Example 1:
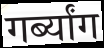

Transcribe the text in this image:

गर्ब्यांग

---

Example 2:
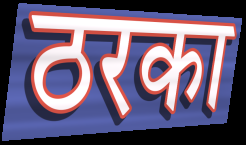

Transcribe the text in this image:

ठरका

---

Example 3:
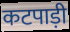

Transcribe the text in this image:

कटपाड़ी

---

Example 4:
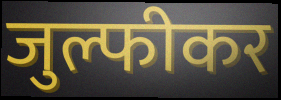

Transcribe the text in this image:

जुल्फीकर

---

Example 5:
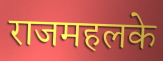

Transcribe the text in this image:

राजमहलके